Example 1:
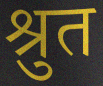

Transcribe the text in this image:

श्रुत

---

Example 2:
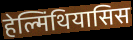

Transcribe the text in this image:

हेल्मिंथियासिस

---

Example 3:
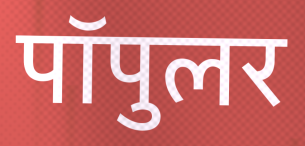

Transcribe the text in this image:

पॉपुलर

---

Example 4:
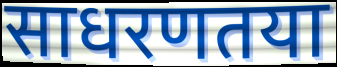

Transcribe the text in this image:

साधरणतया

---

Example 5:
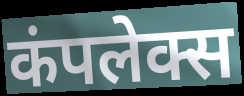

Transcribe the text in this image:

कंपलेक्स